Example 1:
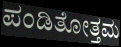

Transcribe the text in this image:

ಪಂಡಿತೋತ್ತಮ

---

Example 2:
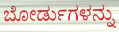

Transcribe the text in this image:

ಬೋರ್ಡುಗಳನ್ನು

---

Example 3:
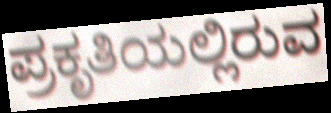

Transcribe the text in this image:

ಪ್ರಕೃತಿಯಲ್ಲಿರುವ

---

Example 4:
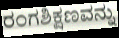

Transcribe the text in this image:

ರಂಗಶಿಕ್ಷಣವನ್ನು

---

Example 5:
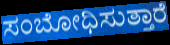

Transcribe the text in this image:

ಸಂಬೋಧಿಸುತ್ತಾರೆ